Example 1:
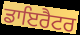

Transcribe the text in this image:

ਡਾਇਰੈਟਰ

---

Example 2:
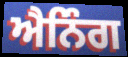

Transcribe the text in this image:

ਐਨਿੰਗ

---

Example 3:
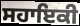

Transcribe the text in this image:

ਸਹਾਇਕੀ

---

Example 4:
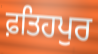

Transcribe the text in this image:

ਫ਼ਤਿਹਪੁਰ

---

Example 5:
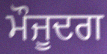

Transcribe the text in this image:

ਮੌਜੂਦਗ